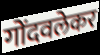
गोंदवलेकर